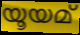
യൂയമ്